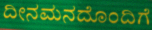
ದೀನಮನದೊಂದಿಗೆ